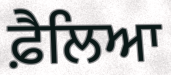
ਫ਼ੈਲਿਆ